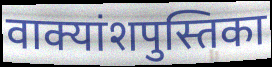
वाक्यांशपुस्तिका